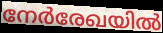
നേർരേഖയിൽ